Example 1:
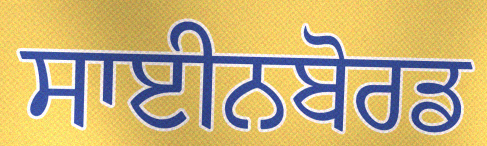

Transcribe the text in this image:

ਸਾਈਨਬੋਰਡ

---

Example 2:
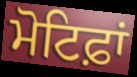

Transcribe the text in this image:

ਮੋਟਿਫ਼ਾਂ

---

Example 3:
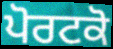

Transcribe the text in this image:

ਪੋਰਟਕੋ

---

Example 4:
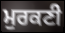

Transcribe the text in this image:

ਮੁਰਕਣੀ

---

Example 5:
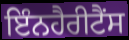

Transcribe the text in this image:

ਇੰਨਹੈਰੀਟੈੰਸ